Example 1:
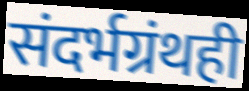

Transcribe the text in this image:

संदर्भग्रंथही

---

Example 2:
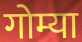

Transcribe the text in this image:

गोम्या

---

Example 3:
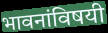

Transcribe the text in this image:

भावनांविषयी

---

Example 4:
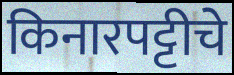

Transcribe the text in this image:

किनारपट्टीचे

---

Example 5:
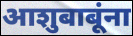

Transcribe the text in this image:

आशुबाबूंना